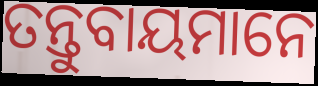
ତନ୍ତୁବାୟମାନେ